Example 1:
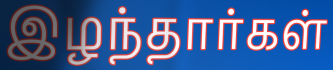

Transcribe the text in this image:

இழந்தார்கள்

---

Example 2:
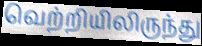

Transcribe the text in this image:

வெற்றியிலிருந்து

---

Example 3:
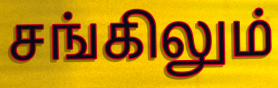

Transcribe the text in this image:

சங்கிலும்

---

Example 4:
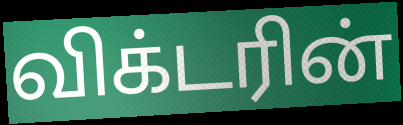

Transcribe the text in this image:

விக்டரின்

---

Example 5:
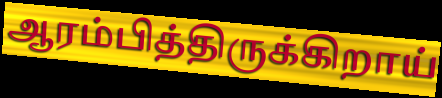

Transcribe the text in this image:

ஆரம்பித்திருக்கிறாய்